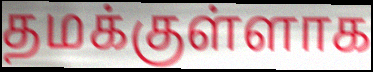
தமக்குள்ளாக